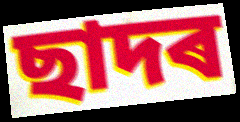
ছাদৰ